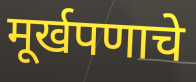
मूर्खपणाचे